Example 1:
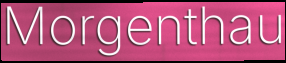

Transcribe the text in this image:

Morgenthau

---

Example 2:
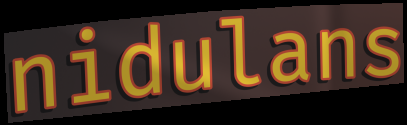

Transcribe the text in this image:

nidulans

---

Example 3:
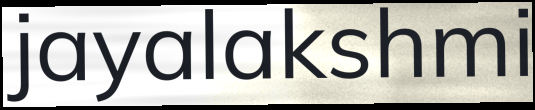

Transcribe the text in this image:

jayalakshmi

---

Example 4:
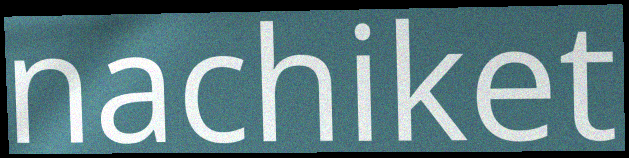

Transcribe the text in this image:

nachiket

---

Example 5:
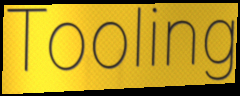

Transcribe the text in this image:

Tooling